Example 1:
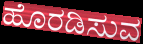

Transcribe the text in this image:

ಹೊರಡಿಸುವ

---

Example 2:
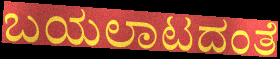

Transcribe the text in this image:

ಬಯಲಾಟದಂತೆ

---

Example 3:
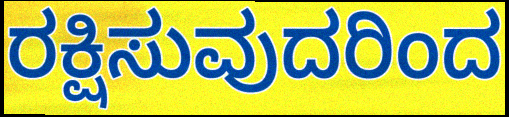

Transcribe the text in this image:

ರಕ್ಷಿಸುವುದರಿಂದ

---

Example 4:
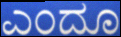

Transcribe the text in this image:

ಎಂದೂ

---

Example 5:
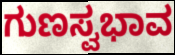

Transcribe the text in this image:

ಗುಣಸ್ವಭಾವ